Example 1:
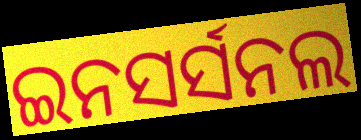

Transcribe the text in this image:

ଇନସର୍ସନଲ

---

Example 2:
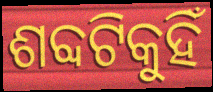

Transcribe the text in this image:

ଶବ୍ଦଟିକୁହିଁ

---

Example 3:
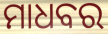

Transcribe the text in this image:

ମାଧବର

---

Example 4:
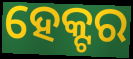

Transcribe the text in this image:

ହେକ୍ଟର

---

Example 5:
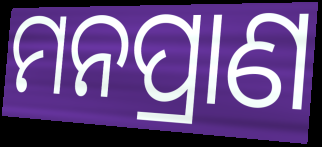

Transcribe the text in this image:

ମନପ୍ରାଣ